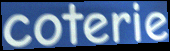
coterie